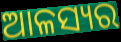
ଆଳସ୍ୟର